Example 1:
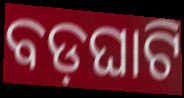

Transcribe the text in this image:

ବଡ଼ଘାଟି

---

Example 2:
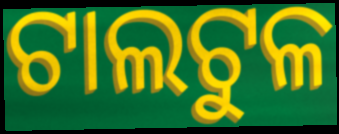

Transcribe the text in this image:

ଟାଲଟୁଳ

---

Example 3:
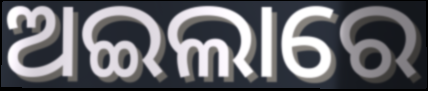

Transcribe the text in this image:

ଅଇଲାରେ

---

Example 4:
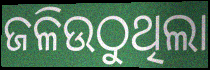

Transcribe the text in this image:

ଜଳିଉଠୁଥିଲା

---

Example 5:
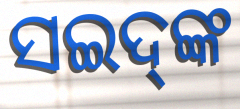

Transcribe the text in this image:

ସଇଦ୍‌ଙ୍କ